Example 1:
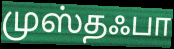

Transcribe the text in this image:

முஸ்தஃபா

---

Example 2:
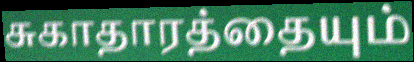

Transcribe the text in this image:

சுகாதாரத்தையும்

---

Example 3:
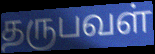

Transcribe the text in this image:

தருபவள்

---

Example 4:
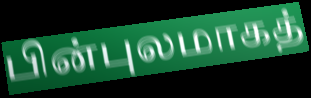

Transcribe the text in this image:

பின்புலமாகத்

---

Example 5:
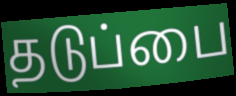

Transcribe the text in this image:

தடுப்பை